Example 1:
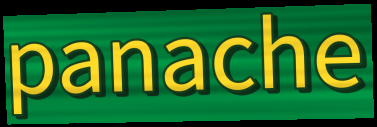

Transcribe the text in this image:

panache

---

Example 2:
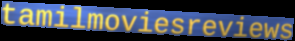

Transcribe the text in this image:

tamilmoviesreviews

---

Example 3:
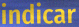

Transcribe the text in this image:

indicar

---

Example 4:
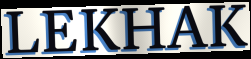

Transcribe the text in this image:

LEKHAK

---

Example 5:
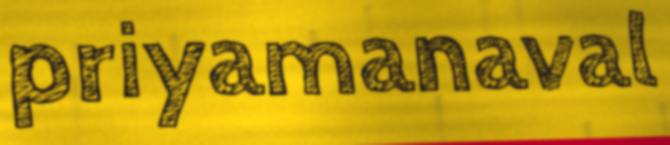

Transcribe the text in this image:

priyamanaval